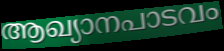
ആഖ്യാനപാടവം